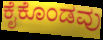
ಕೈಕೊಂಡವು